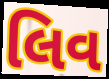
લિવ